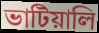
ভাটিয়ালি